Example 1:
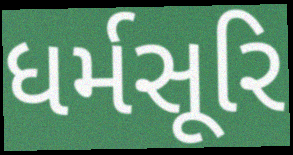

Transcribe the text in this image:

ધર્મસૂરિ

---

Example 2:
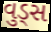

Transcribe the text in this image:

વુડ્સ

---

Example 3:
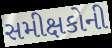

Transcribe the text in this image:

સમીક્ષકોની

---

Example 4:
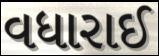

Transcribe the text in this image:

વધારાઈ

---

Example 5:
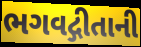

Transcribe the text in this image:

ભગવદ્ગીતાની